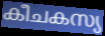
കീചകസ്യ